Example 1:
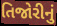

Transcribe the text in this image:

તિજોરીનું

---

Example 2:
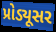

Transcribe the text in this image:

પ્રોડ્યૂસર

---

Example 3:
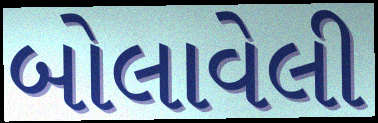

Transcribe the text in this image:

બોલાવેલી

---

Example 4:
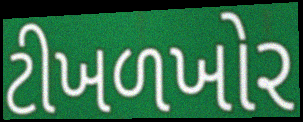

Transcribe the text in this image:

ટીખળખોર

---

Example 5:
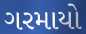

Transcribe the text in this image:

ગરમાયો